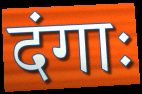
दंगाः